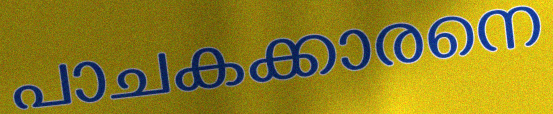
പാചകക്കാരനെ